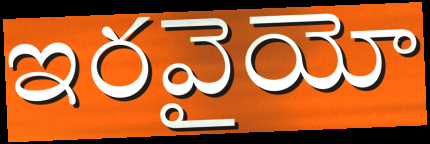
ఇరవైయో